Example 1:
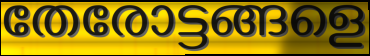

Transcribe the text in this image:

തേരോട്ടങ്ങളെ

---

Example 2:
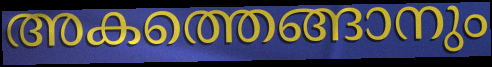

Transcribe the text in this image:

അകത്തെങ്ങാനും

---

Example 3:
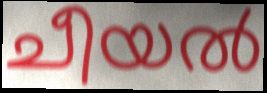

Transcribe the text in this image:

ചീയൽ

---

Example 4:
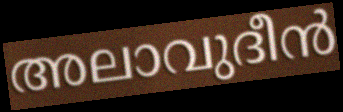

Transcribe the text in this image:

അലാവുദീൻ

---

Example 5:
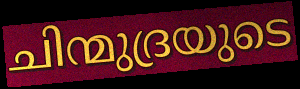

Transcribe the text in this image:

ചിന്മുദ്രയുടെ